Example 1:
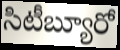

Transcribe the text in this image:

సిటీబ్యూరో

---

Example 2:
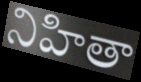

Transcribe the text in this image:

నిహితా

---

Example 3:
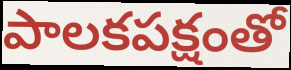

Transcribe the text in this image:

పాలకపక్షంతో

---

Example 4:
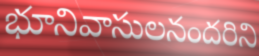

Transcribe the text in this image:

భూనివాసులనందరిని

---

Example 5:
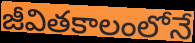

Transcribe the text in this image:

జీవితకాలంలోనే